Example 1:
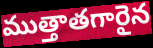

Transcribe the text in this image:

ముత్తాతగారైన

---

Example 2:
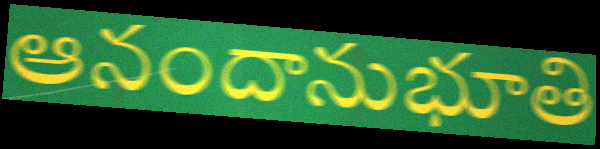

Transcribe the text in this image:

ఆనందానుభూతి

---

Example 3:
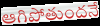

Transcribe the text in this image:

ఆగిపోతుందనే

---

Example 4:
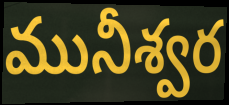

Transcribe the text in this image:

మునీశ్వర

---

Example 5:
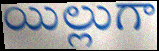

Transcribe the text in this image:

యిల్లుగా